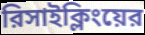
রিসাইক্লিংয়ের